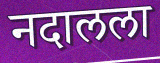
नदालला